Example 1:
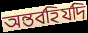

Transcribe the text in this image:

অন্তর্বহির্যদি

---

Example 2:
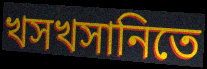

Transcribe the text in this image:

খসখসানিতে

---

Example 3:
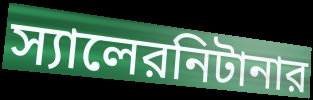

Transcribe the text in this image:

স্যালেরনিটানার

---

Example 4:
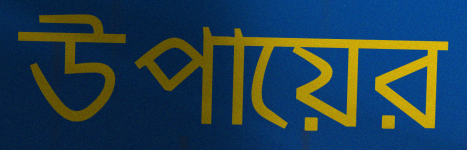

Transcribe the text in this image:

উপায়ের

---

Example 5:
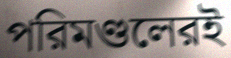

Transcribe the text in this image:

পরিমণ্ডলেরই